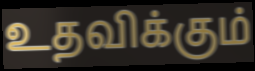
உதவிக்கும்